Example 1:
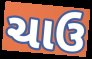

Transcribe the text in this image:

ચાઉ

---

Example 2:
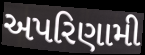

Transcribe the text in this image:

અપરિણામી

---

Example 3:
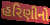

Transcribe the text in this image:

હરિણીનો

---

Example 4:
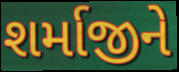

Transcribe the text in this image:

શર્માજીને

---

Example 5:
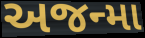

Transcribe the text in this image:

અજન્મા